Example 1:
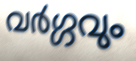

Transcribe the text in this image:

വർഗ്ഗവും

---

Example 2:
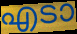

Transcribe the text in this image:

എടാ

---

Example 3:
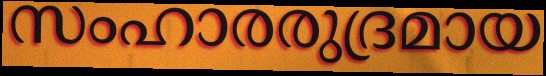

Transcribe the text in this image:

സംഹാരരുദ്രമായ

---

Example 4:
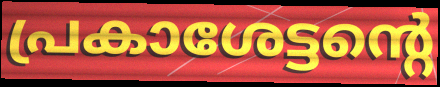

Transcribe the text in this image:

പ്രകാശേട്ടന്റെ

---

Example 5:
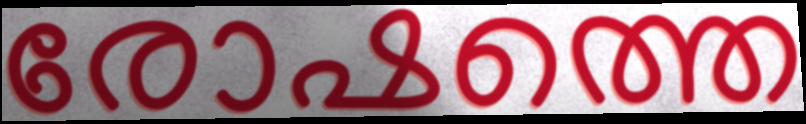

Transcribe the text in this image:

രോഷത്തെ